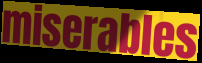
miserables